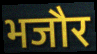
भजौर